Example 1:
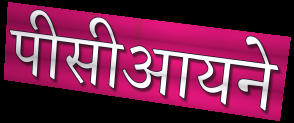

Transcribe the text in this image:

पीसीआयने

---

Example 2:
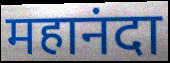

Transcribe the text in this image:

महानंदा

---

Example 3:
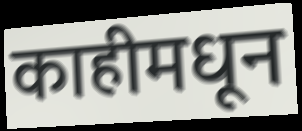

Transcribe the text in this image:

काहीमधून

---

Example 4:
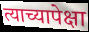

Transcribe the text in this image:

त्याच्यापेक्षा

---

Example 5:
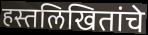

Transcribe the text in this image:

हस्तलिखितांचे